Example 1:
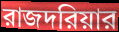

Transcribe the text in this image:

রাজদরিয়ার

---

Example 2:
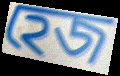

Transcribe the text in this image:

হেজ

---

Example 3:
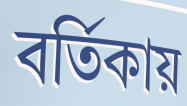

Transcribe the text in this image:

বর্তিকায়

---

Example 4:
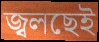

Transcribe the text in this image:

জ্বলছেই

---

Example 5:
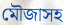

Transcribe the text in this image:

মৌজাসহ